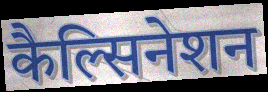
कैल्सिनेशन